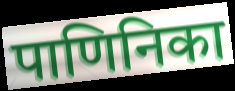
पाणिनिका